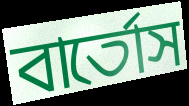
বার্তোস